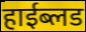
हाईब्लड